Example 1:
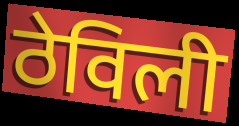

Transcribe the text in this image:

ठेविली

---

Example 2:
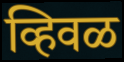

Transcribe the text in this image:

व्हिवळ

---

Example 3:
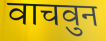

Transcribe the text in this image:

वाचवुन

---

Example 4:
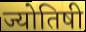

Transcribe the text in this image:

ज्योतिषी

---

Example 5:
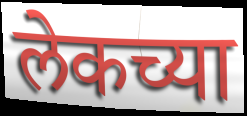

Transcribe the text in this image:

लेकच्या